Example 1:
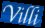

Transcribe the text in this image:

Villi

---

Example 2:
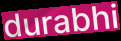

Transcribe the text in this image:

durabhi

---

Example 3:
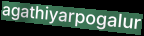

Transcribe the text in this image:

agathiyarpogalur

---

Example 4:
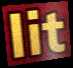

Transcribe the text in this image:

Iit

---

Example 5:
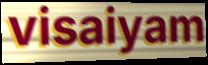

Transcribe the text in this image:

visaiyam